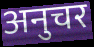
अनुचर